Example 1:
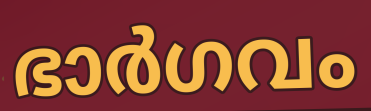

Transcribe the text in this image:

ഭാർഗവം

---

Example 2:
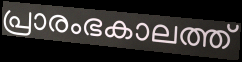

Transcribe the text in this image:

പ്രാരംഭകാലത്ത്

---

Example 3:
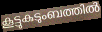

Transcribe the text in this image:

കൂട്ടുകുടുംബത്തിൽ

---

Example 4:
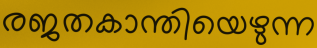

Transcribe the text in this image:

രജതകാന്തിയെഴുന്ന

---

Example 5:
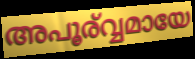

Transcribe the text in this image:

അപൂര്വ്വമായേ